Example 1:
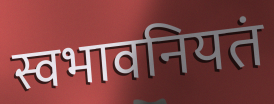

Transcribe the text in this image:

स्वभावनियतं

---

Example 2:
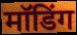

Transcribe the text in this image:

मॉडिंग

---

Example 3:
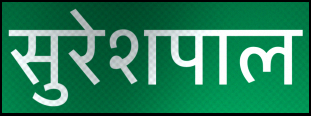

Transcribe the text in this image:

सुरेशपाल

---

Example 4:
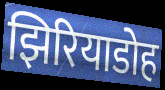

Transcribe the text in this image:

झिरियाडोह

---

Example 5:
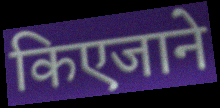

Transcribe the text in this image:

किएजाने